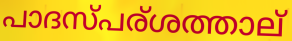
പാദസ്പര്ശത്താല്